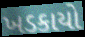
ખડકાયો